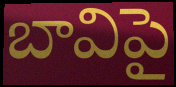
బావిపై